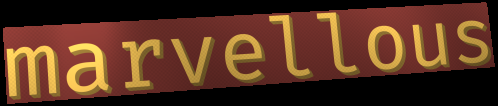
marvellous